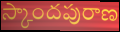
స్కాందపురాణ